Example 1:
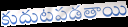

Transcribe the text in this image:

కుదుటపడతాయి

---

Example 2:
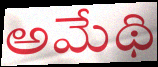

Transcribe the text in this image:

అమేథి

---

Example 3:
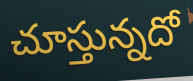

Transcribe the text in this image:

చూస్తున్నదో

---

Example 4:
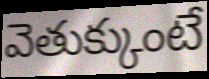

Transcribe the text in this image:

వెతుక్కుంటే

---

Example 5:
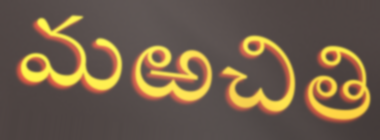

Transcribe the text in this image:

మఱచితి